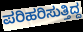
ಪರಿಹರಿಸುತ್ತಿದ್ದ